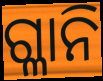
ଗ୍ଳାନି